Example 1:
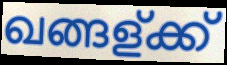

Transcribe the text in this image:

ഖങ്ങള്ക്ക്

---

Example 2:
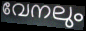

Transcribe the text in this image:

വേനലും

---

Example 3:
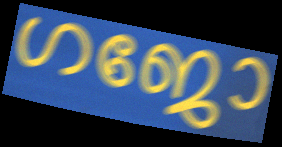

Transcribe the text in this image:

ഗജോ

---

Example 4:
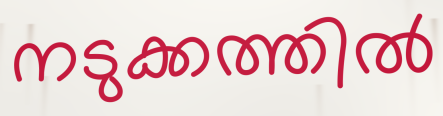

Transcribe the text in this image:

നടുക്കത്തിൽ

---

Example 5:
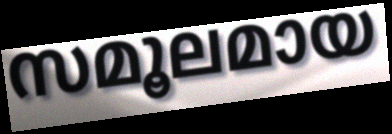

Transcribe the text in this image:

സമൂലമായ